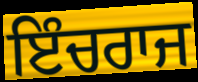
ਇੰਚਰਾਜ